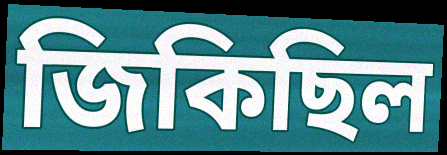
জিকিছিল